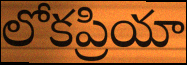
లోకప్రియా